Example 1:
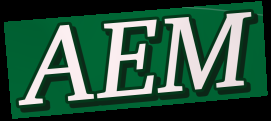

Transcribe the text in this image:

AEM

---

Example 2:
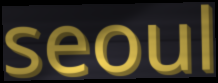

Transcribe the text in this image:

seoul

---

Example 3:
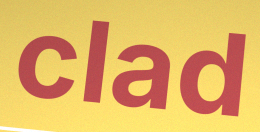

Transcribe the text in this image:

clad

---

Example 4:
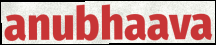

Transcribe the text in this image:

anubhaava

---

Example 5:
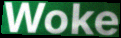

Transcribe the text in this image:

Woke